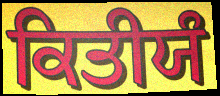
ਕਿਤੀਯੰ